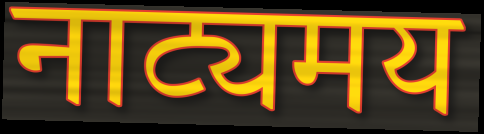
नाट्यमय